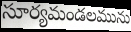
సూర్యమండలమును